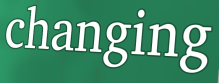
changing